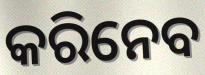
କରିନେବ